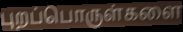
புறப்பொருள்களை